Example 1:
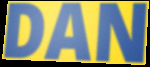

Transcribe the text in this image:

DAN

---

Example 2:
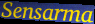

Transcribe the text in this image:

Sensarma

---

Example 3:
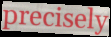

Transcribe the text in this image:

precisely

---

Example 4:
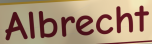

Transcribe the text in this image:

Albrecht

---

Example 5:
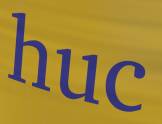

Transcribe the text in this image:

huc